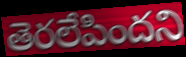
తెరలేపిందని